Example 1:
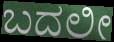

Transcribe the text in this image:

ಬದಲೀ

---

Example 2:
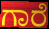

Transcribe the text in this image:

ಗಾರೆ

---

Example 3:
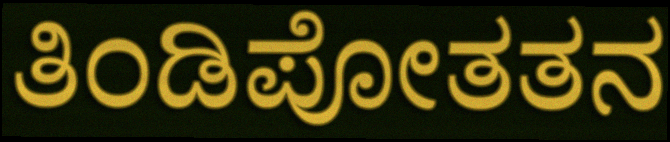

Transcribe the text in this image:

ತಿಂಡಿಪೋತತನ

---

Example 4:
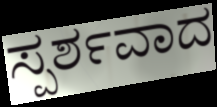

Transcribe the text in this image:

ಸ್ಪರ್ಶವಾದ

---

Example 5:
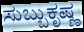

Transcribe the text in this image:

ಸುಬ್ಬುಕೃಷ್ಣ